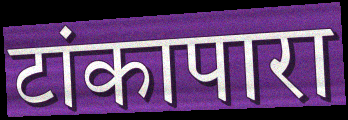
टांकापारा